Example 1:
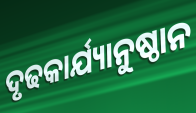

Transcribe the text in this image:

ଦୃଢକାର୍ଯ୍ୟାନୁଷ୍ଠାନ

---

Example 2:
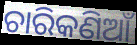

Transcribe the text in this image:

ଚାରିକଣିଆଁ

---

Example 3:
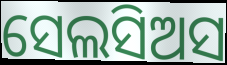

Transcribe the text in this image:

ସେଲସିଅସ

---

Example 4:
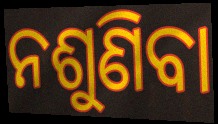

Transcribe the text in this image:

ନଶୁଣିବା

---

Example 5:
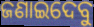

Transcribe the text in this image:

ଜଣାଇଦେବୁ